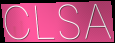
CLSA